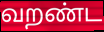
வறண்ட